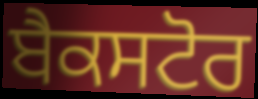
ਬੈਕਸਟੋਰ